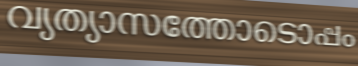
വ്യത്യാസത്തോടൊപ്പം